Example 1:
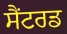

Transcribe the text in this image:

ਸੈਂਟਰਡ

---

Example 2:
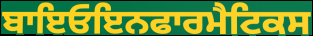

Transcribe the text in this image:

ਬਾਇਓਇਨਫਾਰਮੈਟਿਕਸ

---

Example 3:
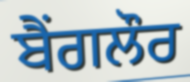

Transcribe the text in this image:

ਬੈੰਗਲੌਰ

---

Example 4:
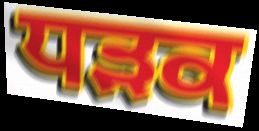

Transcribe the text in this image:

ਧਡ਼ਕ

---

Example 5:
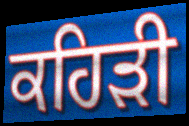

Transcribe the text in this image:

ਕਹਿੜੀ